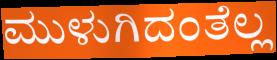
ಮುಳುಗಿದಂತೆಲ್ಲ